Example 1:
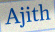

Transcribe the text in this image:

Ajith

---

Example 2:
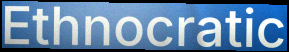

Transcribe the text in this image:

Ethnocratic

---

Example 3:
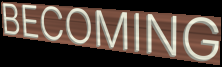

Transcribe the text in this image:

BECOMING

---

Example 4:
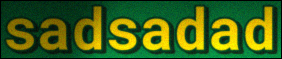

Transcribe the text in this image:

sadsadad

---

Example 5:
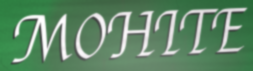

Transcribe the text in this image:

MOHITE